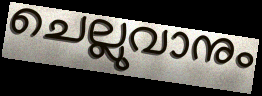
ചെല്ലുവാനും